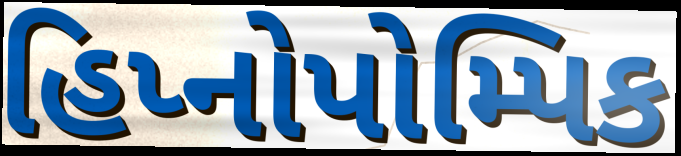
હિપ્નોપોમ્પિક